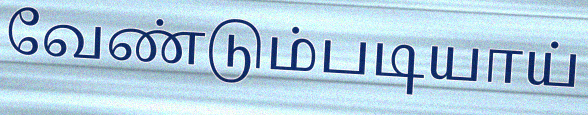
வேண்டும்படியாய்